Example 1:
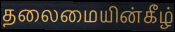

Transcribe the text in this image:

தலைமையின்கீழ்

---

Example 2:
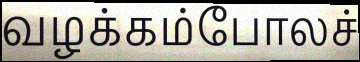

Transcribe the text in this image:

வழக்கம்போலச்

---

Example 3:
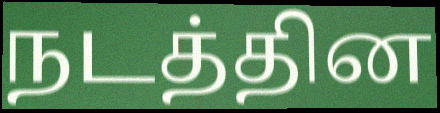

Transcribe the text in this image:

நடத்தின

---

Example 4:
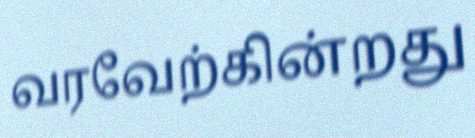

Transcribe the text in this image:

வரவேற்கின்றது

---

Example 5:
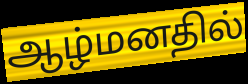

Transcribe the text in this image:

ஆழ்மனதில்